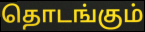
தொடங்கும்